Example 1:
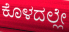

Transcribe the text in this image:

ಕೊಳದಲ್ಲೇ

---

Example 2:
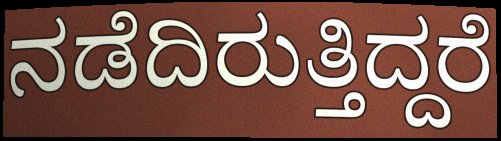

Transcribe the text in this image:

ನಡೆದಿರುತ್ತಿದ್ದರೆ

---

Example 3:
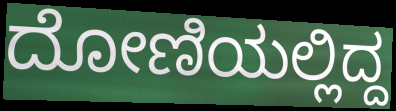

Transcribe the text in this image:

ದೋಣಿಯಲ್ಲಿದ್ದ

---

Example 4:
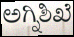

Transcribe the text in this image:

ಅಗ್ನಿಶಿಖೆ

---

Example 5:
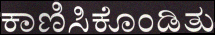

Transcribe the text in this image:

ಕಾಣಿಸಿಕೊಂಡಿತು